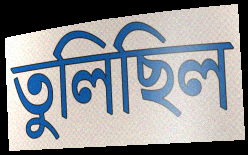
তুলিছিল